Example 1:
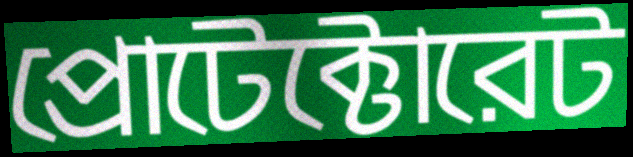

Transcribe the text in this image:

প্রোটেক্টোরেট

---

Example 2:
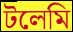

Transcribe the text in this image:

টলেমি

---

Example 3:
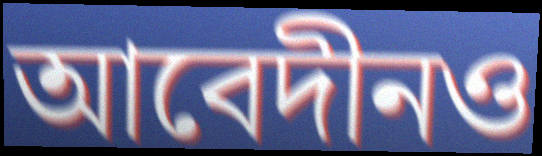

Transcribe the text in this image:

আবেদীনও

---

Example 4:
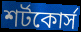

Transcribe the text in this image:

শর্টকোর্স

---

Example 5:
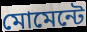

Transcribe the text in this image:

মোমেন্টে